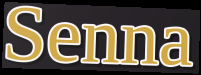
Senna